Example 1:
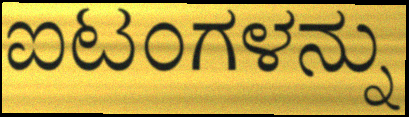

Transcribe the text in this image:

ಐಟಂಗಳನ್ನು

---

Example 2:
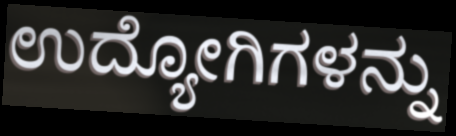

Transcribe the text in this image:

ಉದ್ಯೋಗಿಗಳನ್ನು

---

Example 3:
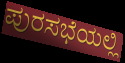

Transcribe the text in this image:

ಪುರಸಭೆಯಲ್ಲಿ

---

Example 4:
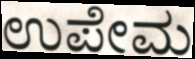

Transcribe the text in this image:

ಉಪೇಮ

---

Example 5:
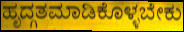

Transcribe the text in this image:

ಹೃದ್ಗತಮಾಡಿಕೊಳ್ಳಬೇಕು